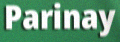
Parinay